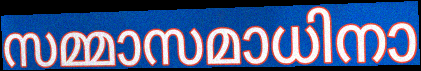
സമ്മാസമാധിനാ